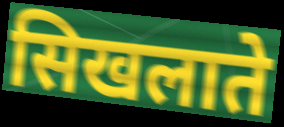
सिखलाते